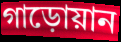
গাড়োয়ান